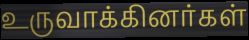
உருவாக்கினர்கள்